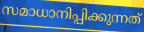
സമാധാനിപ്പിക്കുന്നത്